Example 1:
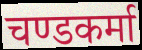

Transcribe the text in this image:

चण्डकर्मा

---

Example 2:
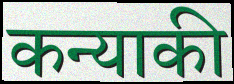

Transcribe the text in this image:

कन्याकी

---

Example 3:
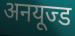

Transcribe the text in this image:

अनयूज्ड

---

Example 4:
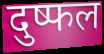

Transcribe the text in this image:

दुष्फल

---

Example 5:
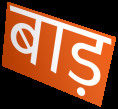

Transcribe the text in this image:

बाड़